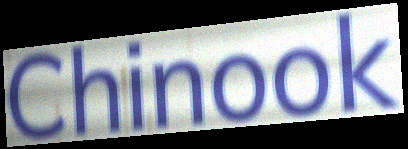
Chinook